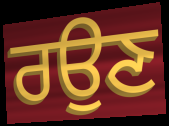
ਰਉਣ